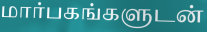
மார்பகங்களுடன்